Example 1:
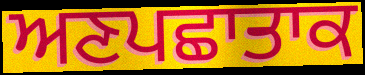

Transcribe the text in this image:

ਅਣਪਛਾਤਾਕ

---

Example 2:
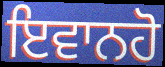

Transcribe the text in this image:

ਇਵਾਨਹੋ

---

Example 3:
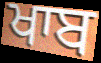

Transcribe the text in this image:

ਖਾਬ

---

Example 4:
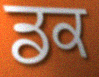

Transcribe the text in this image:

ਡਕ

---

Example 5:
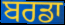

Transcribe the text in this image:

ਬਰਡਾ